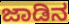
ಜಾಡಿನ